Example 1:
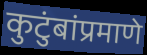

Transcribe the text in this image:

कुटुंबांप्रमाणे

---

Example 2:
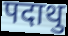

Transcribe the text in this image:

पदाथु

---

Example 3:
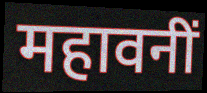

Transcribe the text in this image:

महावनीं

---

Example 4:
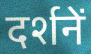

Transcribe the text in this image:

दर्शनें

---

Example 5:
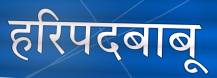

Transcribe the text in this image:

हरिपदबाबू